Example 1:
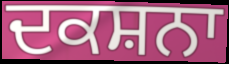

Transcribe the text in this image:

ਦਕਸ਼ਨਾ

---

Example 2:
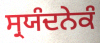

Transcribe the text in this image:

ਸ੍ਰਯੰਦਨੇਕੰ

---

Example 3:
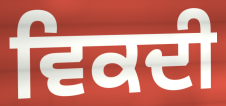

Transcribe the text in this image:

ਵਿਕਦੀ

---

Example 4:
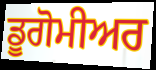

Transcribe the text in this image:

ਡੂਗੋਮੀਅਰ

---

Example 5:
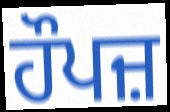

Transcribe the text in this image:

ਹੌਪਜ਼